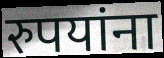
रुपयांना